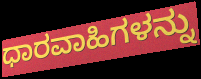
ಧಾರವಾಹಿಗಳನ್ನು